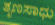
ತೃಣಸಾಧು